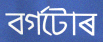
বৰ্গটোৰ